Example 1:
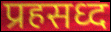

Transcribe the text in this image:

प्रहसध्द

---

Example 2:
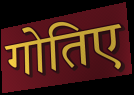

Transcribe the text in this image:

गोतिए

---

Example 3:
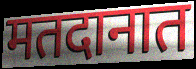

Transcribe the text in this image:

मतदानात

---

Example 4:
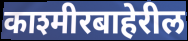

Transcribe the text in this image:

काश्मीरबाहेरील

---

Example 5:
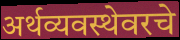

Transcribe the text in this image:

अर्थव्यवस्थेवरचे